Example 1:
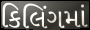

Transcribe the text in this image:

કિલિંગમાં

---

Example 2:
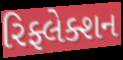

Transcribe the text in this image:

રિફ્લેક્શન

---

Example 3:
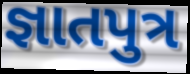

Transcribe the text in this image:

જ્ઞાતપુત્ર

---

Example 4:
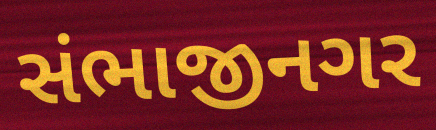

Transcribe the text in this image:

સંભાજીનગર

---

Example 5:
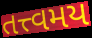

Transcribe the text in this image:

તત્ત્વમય